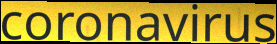
coronavirus